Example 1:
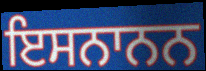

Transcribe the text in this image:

ਇਸਨਾਨਨ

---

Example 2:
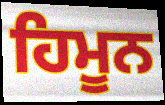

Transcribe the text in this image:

ਹਿਮੂਨ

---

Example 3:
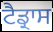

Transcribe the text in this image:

ਟੈਡ੍ਰਾਸ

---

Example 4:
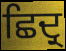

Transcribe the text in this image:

ਛਿਦ੍ਰ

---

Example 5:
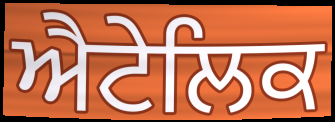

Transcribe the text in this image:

ਐਟੇਲਿਕ